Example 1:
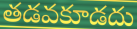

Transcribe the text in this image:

తడవకూడదు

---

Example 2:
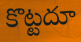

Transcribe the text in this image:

కొట్టదూ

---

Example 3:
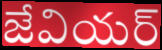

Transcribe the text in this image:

జేవియర్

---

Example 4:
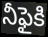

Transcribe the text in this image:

నీఫైకి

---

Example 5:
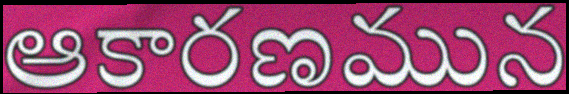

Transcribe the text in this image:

ఆకారణమున